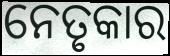
ନେତୃକାର